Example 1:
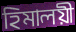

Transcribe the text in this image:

হিমালয়ী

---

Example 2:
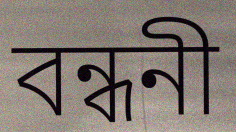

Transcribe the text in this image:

বন্ধনী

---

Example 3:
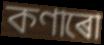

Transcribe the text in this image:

কণাৰো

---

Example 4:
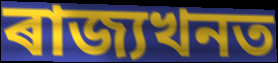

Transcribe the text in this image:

ৰাজ্যখনত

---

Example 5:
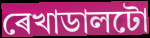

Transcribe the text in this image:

ৰেখাডালটো